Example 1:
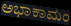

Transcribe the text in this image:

ಅಭಾಕಾಮಂ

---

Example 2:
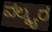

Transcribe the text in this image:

ವಲ್ಕ್ಯರ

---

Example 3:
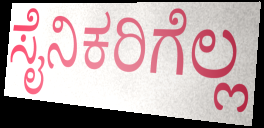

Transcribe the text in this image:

ಸೈನಿಕರಿಗೆಲ್ಲ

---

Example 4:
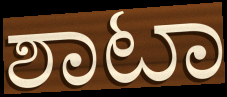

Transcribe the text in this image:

ಶಾಟಾ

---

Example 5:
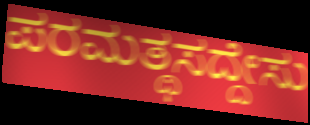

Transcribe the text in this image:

ಪರಮತ್ಥಸದ್ದೇಸು